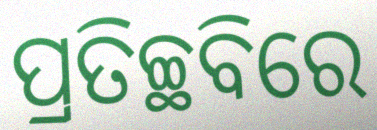
ପ୍ରତିଚ୍ଛବିରେ